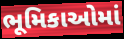
ભૂમિકાઓમાં